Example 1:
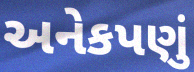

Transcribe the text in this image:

અનેકપણું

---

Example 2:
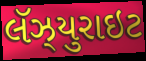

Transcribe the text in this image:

લૅઝ્યુરાઇટ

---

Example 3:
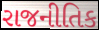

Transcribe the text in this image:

રાજનીતિક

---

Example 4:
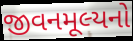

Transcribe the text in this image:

જીવનમૂલ્યનો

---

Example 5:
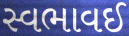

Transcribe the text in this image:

સ્વભાવઈ